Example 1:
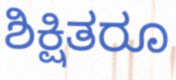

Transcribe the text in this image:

ಶಿಕ್ಷಿತರೂ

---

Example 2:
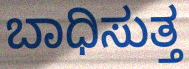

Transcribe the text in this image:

ಬಾಧಿಸುತ್ತ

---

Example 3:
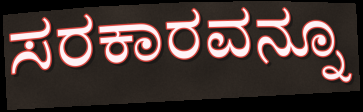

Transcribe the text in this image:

ಸರಕಾರವನ್ನೂ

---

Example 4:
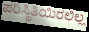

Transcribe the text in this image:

ಪರಿಸ್ಥಿತಿಯಿರಲಿಲ್ಲ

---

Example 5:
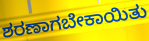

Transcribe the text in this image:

ಶರಣಾಗಬೇಕಾಯಿತು